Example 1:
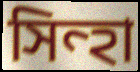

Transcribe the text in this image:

সিন্হা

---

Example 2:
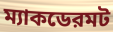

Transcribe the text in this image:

ম্যাকডেরমট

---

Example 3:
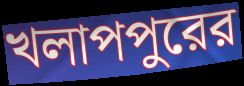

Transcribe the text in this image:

খলাপপুরের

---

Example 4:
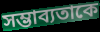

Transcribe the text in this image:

সম্ভাব্যতাকে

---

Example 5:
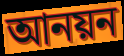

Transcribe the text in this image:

আনয়ন